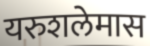
यरुशलेमास